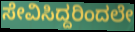
ಸೇವಿಸಿದ್ದರಿಂದಲೇ